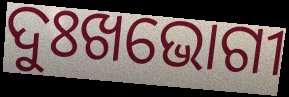
ଦୁଃଖଭୋଗୀ